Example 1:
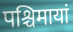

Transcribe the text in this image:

पश्चिमायां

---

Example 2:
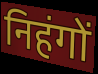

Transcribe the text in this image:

निहंगों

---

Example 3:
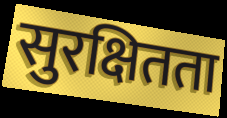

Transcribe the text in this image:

सुरक्षितता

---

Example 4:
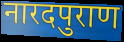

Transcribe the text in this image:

नारदपुराण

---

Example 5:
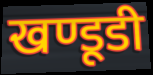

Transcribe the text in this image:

खण्डूडी